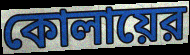
কোলায়ের